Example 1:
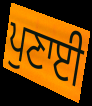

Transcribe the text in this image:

ਪੁਣਾਈ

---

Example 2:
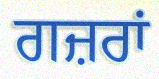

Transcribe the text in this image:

ਗਜ਼ਰਾਂ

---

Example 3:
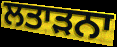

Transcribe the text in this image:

ਲਤਾੜਨਾ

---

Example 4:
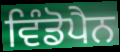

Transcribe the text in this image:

ਵਿੰਡੋਪੈਨ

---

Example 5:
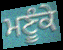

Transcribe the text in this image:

ਮਣੂੰਕੇ